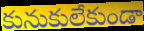
కునుకులేకుండా